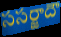
ససర్జాదౌ